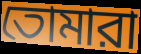
তোমারা